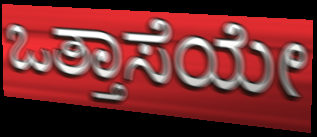
ಒತ್ತಾಸೆಯೇ